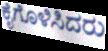
ಕೈಗೊಳಿಸಿದರು